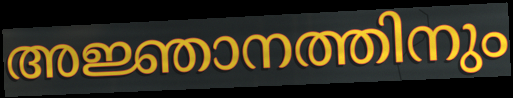
അജ്ഞാനത്തിനും